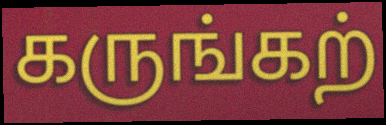
கருங்கற்